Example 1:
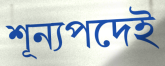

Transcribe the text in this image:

শূন্যপদেই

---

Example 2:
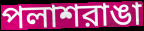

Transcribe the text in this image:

পলাশরাঙা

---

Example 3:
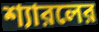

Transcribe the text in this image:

শ্যারলের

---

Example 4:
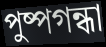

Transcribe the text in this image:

পুষ্পগন্ধা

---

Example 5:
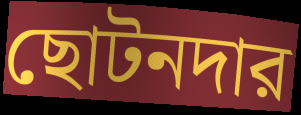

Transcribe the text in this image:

ছোটনদার